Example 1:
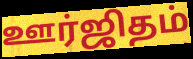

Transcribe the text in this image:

ஊர்ஜிதம்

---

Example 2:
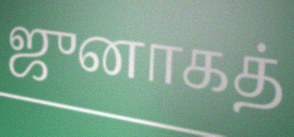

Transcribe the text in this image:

ஜுனாகத்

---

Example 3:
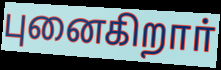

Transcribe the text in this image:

புனைகிறார்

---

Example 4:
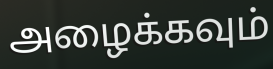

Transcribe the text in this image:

அழைக்கவும்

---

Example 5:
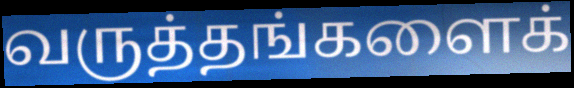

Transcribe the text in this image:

வருத்தங்களைக்